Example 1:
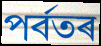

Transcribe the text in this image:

পৰ্বতৰ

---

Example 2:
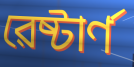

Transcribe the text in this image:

ৱেষ্টাৰ্ণ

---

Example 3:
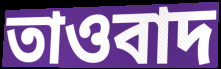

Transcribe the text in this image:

তাওবাদ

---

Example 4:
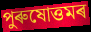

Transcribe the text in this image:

পুৰুষোত্তমৰ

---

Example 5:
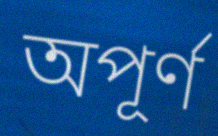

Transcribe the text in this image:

অপূৰ্ণ